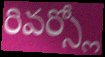
రివర్స్లో